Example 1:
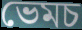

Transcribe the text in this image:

ভেমচ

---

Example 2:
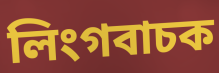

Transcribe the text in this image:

লিংগবাচক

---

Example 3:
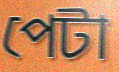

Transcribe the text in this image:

পেটা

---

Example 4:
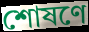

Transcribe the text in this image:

শোষণে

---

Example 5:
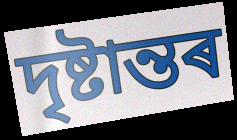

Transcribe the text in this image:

দৃষ্টান্তৰ